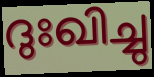
ദുഃഖിച്ചു